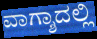
ವಾಗ್ಶಾದಲ್ಲಿ